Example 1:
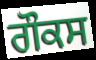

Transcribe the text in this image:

ਗੌਕਸ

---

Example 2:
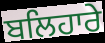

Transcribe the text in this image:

ਬਲਿਹਾਰੇ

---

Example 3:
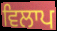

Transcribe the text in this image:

ਵਿਲਾਪ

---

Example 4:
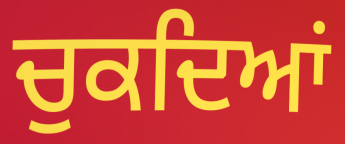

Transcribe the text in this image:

ਚੁਕਦਿਆਂ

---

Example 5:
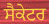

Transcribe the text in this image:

ਸੈਕੇਟਰ